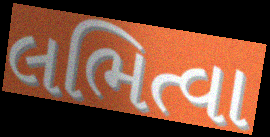
લભિત્વા